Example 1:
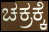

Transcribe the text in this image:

ಚಕ್ರಕ್ಕೆ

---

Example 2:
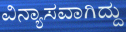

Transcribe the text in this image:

ವಿನ್ಯಾಸವಾಗಿದ್ದು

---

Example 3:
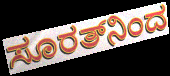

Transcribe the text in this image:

ಸೂರತ್‌ನಿಂದ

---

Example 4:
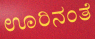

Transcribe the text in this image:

ಊರಿನಂತೆ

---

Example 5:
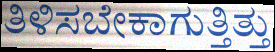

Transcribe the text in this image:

ತಿಳಿಸಬೇಕಾಗುತ್ತಿತ್ತು